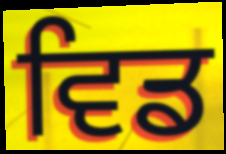
ਵਿਡ